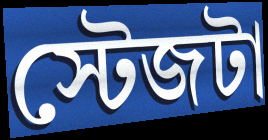
স্টেজটা